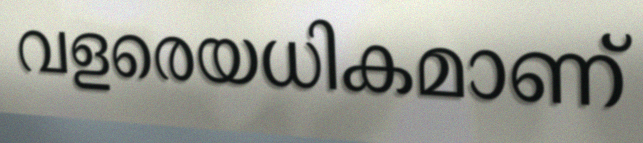
വളരെയധികമാണ്